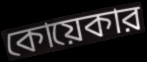
কোয়েকার